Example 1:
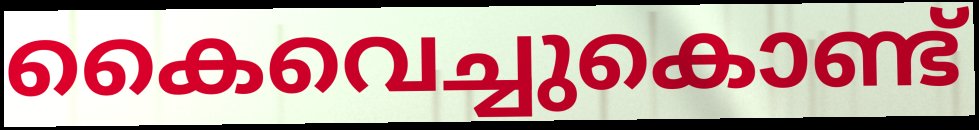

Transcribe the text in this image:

കൈവെച്ചുകൊണ്ട്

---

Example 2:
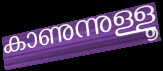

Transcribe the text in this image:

കാണുന്നുള്ളൂ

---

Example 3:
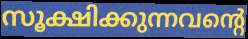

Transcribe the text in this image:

സൂക്ഷിക്കുന്നവന്റെ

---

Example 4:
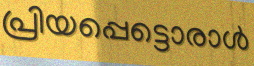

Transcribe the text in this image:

പ്രിയപ്പെട്ടൊരാൾ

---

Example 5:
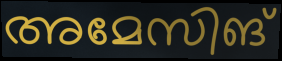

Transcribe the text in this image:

അമേസിങ്